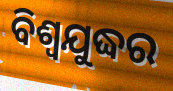
ବିଶ୍ୱଯୁଦ୍ଧର